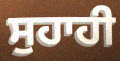
ਸੁਹਾਹੀ